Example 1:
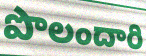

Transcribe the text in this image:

పొలందారి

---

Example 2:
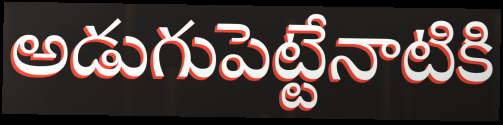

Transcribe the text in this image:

అడుగుపెట్టేనాటికి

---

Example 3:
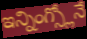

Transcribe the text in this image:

ఇన్నింగ్స్లోనే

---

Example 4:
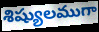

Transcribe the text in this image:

శిష్యులముగా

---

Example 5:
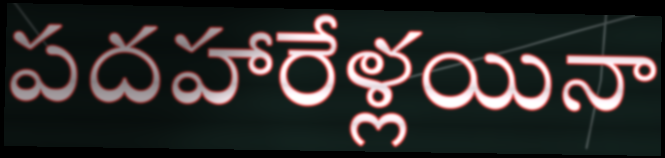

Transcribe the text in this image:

పదహారేళ్లయినా